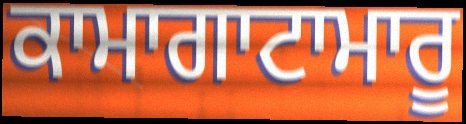
ਕਾਮਾਗਾਟਾਮਾਰੂ